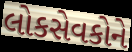
લોકસેવકોને